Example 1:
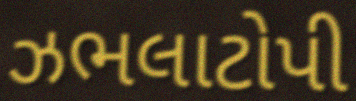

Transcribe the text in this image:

ઝભલાટોપી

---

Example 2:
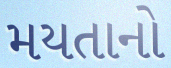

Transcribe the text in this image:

મયતાનો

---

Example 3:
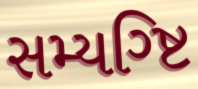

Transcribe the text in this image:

સમ્યગ્ષ્ટિ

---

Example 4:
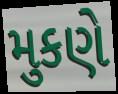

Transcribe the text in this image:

મુકણે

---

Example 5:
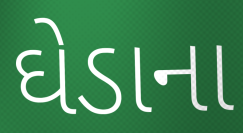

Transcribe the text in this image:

ઘેડાના